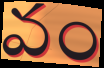
వం